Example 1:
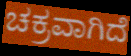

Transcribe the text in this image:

ಚಕ್ರವಾಗಿದೆ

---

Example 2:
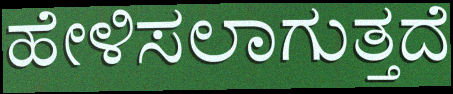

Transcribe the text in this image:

ಹೇಳಿಸಲಾಗುತ್ತದೆ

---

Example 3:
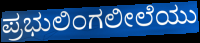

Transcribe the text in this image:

ಪ್ರಭುಲಿಂಗಲೀಲೆಯು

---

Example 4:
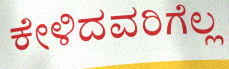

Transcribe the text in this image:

ಕೇಳಿದವರಿಗೆಲ್ಲ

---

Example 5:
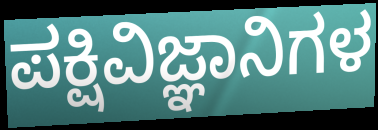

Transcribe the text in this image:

ಪಕ್ಷಿವಿಜ್ಞಾನಿಗಳ